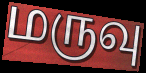
மருவு